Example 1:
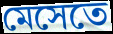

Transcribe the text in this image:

মেসেতে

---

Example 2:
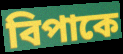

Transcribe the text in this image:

বিপাকে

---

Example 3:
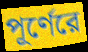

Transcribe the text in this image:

পূর্ণেরে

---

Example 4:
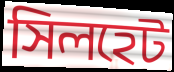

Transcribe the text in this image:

সিলহেট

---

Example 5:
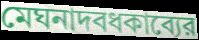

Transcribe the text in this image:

মেঘনাদবধকাব্যের